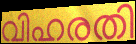
വിഹരതി